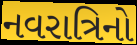
નવરાત્રિનો